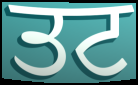
ਤਟ